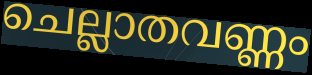
ചെല്ലാതവണ്ണം